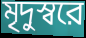
মৃদুস্বরে